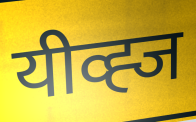
यीव्ह्ज